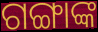
ଗଙ୍ଗାଙ୍କ